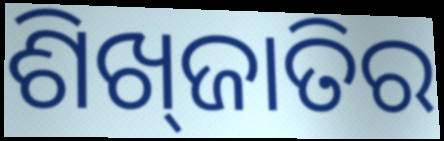
ଶିଖ୍‌ଜାତିର